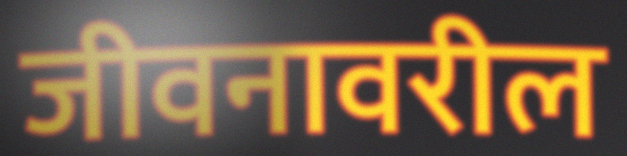
जीवनावरील